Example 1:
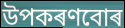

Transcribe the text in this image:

উপকৰণবোৰ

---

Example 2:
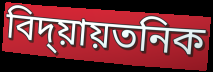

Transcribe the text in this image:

বিদ্য়ায়তনিক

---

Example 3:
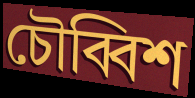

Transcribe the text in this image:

চৌব্বিশ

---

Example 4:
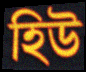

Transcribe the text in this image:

হিউ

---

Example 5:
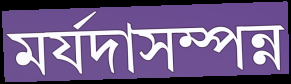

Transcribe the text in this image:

মৰ্যদাসম্পন্ন